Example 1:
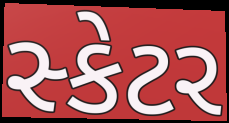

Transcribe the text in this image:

સ્કેટર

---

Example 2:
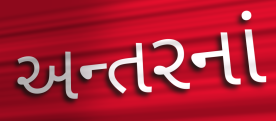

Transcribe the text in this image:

અન્તરનાં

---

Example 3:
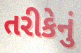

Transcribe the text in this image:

તરીકેનું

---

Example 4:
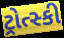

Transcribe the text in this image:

ટ્રોત્સ્કી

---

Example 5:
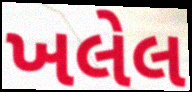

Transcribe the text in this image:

ખલેલ